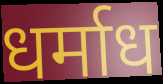
धर्माध